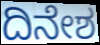
ದಿನೇಶ